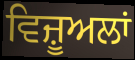
ਵਿਜ਼ੂਅਲਾਂ